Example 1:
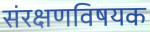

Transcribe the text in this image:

संरक्षणविषयक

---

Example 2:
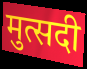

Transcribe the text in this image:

मुत्सदी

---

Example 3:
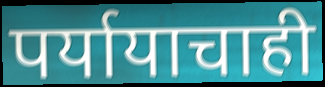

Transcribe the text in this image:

पर्यायाचाही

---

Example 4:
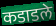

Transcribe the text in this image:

कडाडले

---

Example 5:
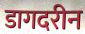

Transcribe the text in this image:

डागदरीन